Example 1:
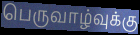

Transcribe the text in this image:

பெருவாழ்வுக்கு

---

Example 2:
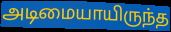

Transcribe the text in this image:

அடிமையாயிருந்த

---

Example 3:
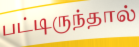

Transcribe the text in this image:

பட்டிருந்தால்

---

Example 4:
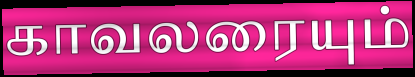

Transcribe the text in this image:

காவலரையும்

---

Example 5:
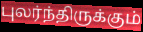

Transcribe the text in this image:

புலர்ந்திருக்கும்